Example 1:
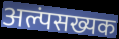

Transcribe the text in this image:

अल्पंसख्यक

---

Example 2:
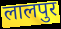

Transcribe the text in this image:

लालपुर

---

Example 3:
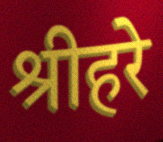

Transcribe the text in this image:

श्रीहरे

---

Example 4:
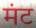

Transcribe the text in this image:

मंट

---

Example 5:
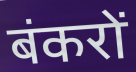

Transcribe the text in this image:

बंकरों